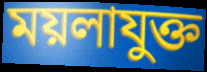
ময়লাযুক্ত